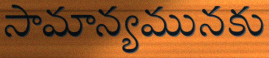
సామాన్యమునకు